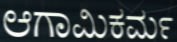
ಆಗಾಮಿಕರ್ಮ